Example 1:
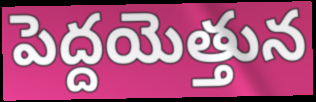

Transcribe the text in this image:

పెద్దయెత్తున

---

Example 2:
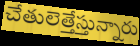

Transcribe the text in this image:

చేతులెత్తేస్తున్నారు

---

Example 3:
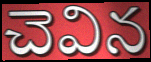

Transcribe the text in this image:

చెవిన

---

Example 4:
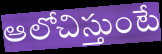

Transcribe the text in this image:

ఆలోచిస్తుంటే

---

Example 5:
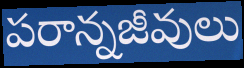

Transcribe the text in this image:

పరాన్నజీవులు